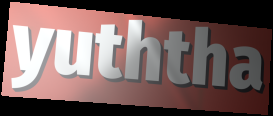
yuththa